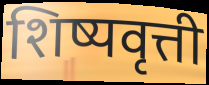
शिष्यवृत्ती